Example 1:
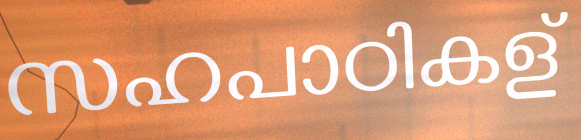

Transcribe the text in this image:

സഹപാഠികള്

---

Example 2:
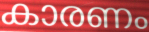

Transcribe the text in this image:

കാരണം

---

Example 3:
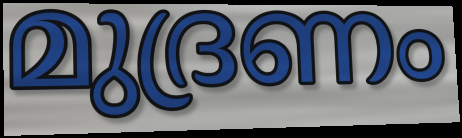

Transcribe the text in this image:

മുദ്രണം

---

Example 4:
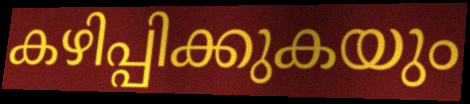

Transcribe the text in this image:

കഴിപ്പിക്കുകയും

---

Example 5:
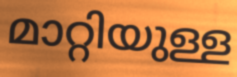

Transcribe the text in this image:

മാറ്റിയുള്ള